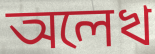
অলেখ